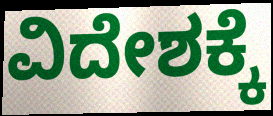
ವಿದೇಶಕ್ಕೆ